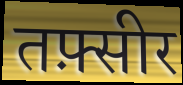
तफ़्सीर